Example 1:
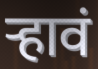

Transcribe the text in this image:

र्‍हावं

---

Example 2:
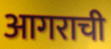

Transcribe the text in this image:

आगराची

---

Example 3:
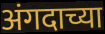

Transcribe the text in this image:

अंगदाच्या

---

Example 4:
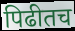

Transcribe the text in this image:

पिढीतच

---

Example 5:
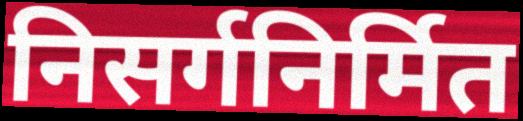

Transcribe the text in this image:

निसर्गनिर्मित